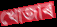
খোজাৰ